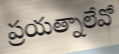
ప్రయత్నాలేవో